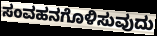
ಸಂವಹನಗೊಳಿಸುವುದು